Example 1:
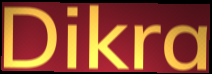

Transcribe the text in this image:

Dikra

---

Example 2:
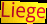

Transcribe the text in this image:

Liege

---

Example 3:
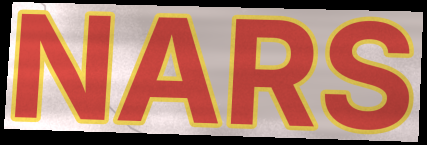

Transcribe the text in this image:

NARS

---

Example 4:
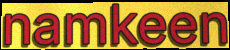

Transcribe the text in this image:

namkeen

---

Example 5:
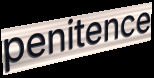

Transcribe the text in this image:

penitence